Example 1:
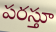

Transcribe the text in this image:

పరస్తూ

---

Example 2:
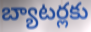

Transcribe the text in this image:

బ్యాటర్లకు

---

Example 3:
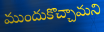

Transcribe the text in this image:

ముందుకొచ్చామని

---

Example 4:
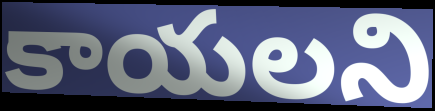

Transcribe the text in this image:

కాయలని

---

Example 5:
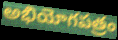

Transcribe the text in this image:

అభియోగపత్రం